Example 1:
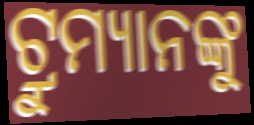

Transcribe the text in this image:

ଟ୍ରୁମ୍ୟାନଙ୍କୁ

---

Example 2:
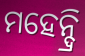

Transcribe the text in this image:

ମହେନ୍ଦ୍ରି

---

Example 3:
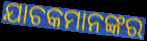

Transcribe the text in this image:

ଯାଚକମାନଙ୍କର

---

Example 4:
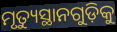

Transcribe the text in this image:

ମୃତ୍ୟୁସ୍ଥାନଗୁଡ଼ିକୁ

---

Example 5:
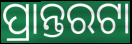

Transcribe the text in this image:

ପ୍ରାନ୍ତରଟା